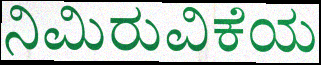
ನಿಮಿರುವಿಕೆಯ